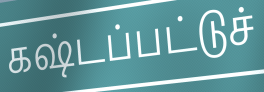
கஷ்டப்பட்டுச்